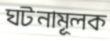
ঘটনামূলক